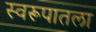
स्वरूपातला